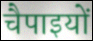
चैपाइयों